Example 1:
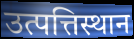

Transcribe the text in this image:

उत्पत्तिस्थान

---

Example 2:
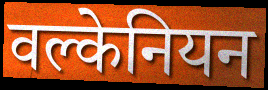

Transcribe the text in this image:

वल्केनियन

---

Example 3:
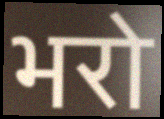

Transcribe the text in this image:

भरो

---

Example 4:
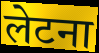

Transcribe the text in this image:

लेटना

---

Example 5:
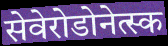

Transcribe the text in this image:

सेवेरोडोनेत्स्क